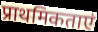
प्राथमिकताएं